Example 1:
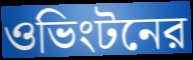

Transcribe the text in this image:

ওভিংটনের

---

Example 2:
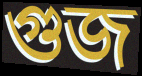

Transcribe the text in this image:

গুজ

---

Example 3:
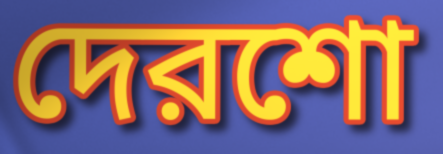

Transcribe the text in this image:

দেরশো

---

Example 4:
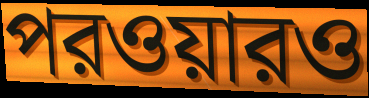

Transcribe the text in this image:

পরওয়ারও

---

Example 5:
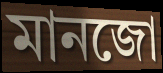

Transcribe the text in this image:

মানজো